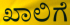
ಖಾಲಿಗೆ